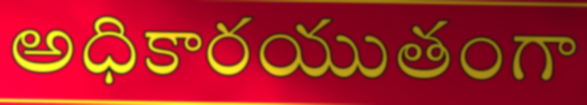
అధికారయుతంగా